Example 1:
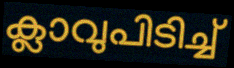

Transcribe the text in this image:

ക്ലാവുപിടിച്ച്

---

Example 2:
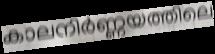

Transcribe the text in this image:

കാലനിർണ്ണയത്തിലെ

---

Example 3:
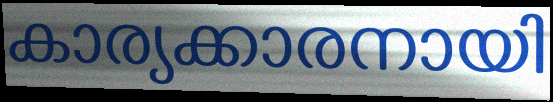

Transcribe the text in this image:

കാര്യക്കാരനായി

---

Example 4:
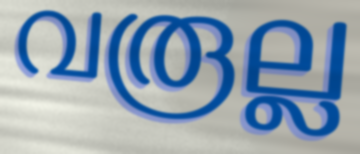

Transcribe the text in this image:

വരൂല്ല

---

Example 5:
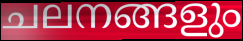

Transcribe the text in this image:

ചലനങ്ങളും